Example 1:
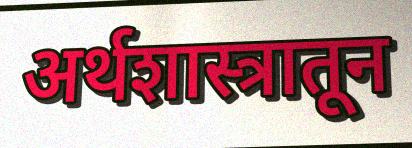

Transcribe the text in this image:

अर्थशास्त्रातून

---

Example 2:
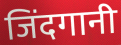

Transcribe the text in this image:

जिंदगानी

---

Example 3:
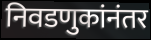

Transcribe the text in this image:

निवडणुकांनंतर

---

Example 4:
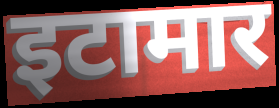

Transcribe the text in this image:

इटामार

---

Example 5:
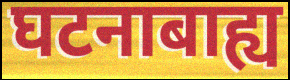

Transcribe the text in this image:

घटनाबाह्य